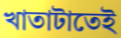
খাতাটাতেই